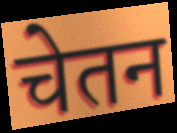
चेतन